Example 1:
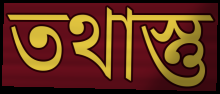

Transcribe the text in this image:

তথাস্তু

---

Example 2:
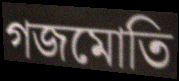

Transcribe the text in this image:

গজমোতি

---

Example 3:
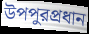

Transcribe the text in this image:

উপপুরপ্রধান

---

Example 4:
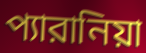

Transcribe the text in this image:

প্যারানিয়া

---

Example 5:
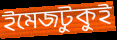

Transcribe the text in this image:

ইমেজটুকুই